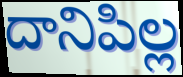
దానిపిల్ల